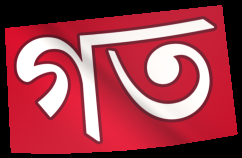
গত